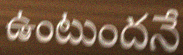
ఉంటుందనే